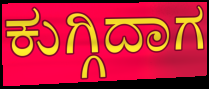
ಕುಗ್ಗಿದಾಗ